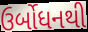
ઉર્બોધનથી